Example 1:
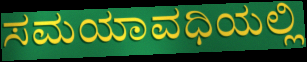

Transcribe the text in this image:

ಸಮಯಾವಧಿಯಲ್ಲಿ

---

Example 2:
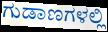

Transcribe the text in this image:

ಗುಡಾಣಗಳಲ್ಲಿ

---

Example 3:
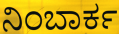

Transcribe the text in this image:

ನಿಂಬಾರ್ಕ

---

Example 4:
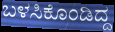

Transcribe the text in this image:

ಬಳಸಿಕೊಂಡಿದ್ದ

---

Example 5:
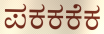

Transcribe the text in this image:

ಪಕಕಕೆಕ